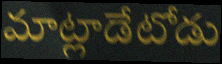
మాట్లాడేటోడు